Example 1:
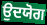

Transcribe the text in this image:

ਉਦਯੋਗ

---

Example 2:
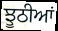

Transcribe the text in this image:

ਝੂਠੀਆਂ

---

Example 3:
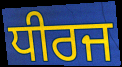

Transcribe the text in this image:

ਧੀਰਜ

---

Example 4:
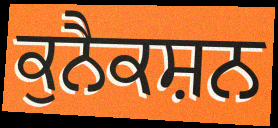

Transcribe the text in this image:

ਕੁਨੈਕਸ਼ਨ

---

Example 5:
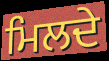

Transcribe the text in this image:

ਮਿਲਦੇ